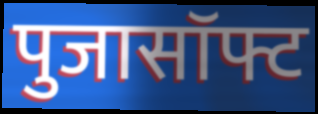
पुजासॉफ्ट